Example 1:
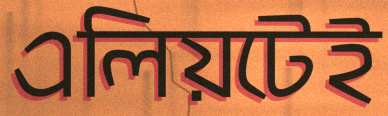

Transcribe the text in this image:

এলিয়টেই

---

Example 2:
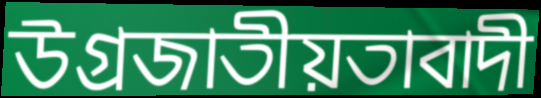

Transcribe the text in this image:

উগ্ৰজাতীয়তাবাদী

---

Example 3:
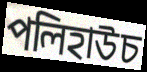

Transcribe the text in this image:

পলিহাউচ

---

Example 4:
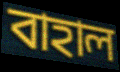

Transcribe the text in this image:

বাহাল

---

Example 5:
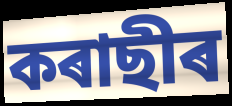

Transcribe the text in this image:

কৰাছীৰ